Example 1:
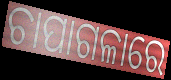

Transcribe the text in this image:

ଚାପାଗଳାରେ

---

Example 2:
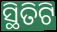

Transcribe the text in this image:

ସ୍ଥିତିଟି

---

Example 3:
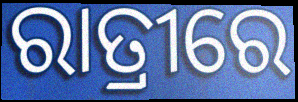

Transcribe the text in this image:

ରାତ୍ରୀରେ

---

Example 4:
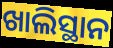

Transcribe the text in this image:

ଖାଲିସ୍ଥାନ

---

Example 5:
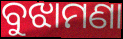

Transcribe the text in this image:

ବୁଝାମଣା